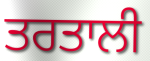
ਤਰਤਾਲੀ